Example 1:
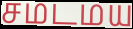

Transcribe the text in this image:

சமடமய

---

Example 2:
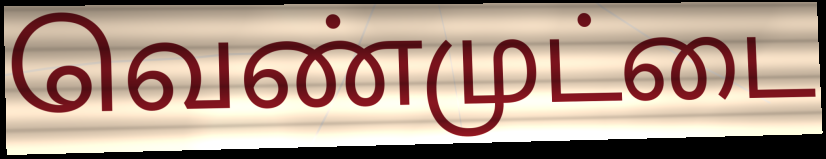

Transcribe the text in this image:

வெண்முட்டை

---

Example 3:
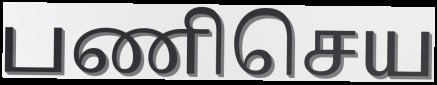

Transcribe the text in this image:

பணிசெய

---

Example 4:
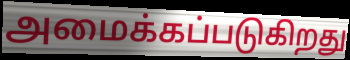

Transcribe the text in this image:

அமைக்கப்படுகிறது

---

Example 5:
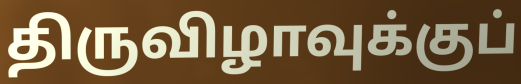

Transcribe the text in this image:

திருவிழாவுக்குப்